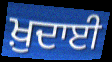
ਖ਼ੁਦਾਈ